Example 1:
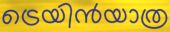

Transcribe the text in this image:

ട്രെയിൻയാത്ര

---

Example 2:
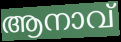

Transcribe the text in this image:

ആനാവ്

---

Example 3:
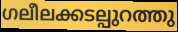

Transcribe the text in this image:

ഗലീലക്കടല്പുറത്തു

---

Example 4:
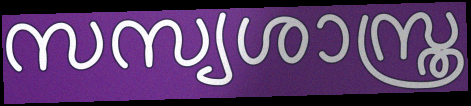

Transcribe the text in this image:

സസ്യശാസ്ത്ര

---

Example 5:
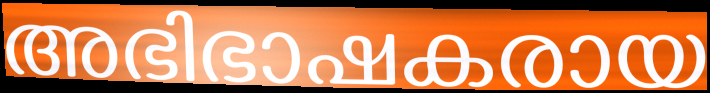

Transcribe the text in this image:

അഭിഭാഷകരായ